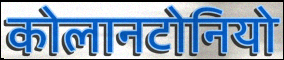
कोलानटोनियो